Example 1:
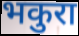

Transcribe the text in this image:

भकुरा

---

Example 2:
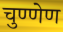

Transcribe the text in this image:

चुण्णेण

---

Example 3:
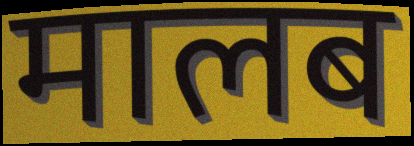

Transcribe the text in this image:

मालब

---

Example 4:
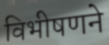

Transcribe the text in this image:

विभीषणने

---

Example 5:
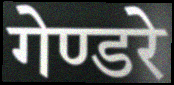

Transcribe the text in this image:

गेण्डरे